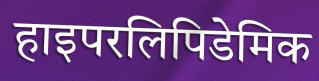
हाइपरलिपिडेमिक